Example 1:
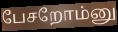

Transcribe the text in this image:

பேசறோம்னு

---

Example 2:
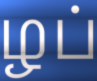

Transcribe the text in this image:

ழப்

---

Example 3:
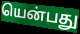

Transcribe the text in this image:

யென்பது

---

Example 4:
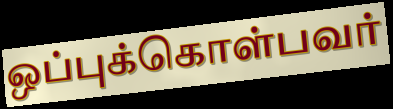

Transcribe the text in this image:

ஒப்புக்கொள்பவர்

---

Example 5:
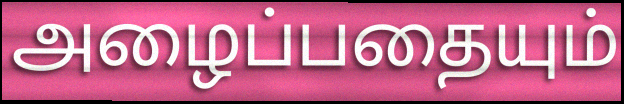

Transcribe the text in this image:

அழைப்பதையும்